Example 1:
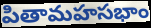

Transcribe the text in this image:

పితామహసభాం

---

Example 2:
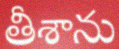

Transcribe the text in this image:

తీశాను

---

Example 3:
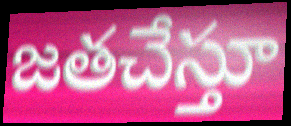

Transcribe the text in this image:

జతచేస్తూ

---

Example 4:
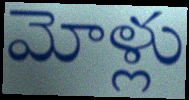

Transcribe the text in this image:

మోళ్లు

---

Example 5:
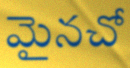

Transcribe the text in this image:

మైనచో